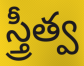
స్త్రీత్వ